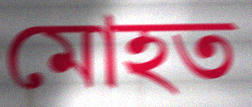
মোহত